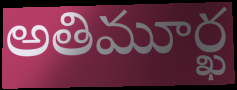
అతిమూర్ఖ